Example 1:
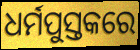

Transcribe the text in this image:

ଧର୍ମପୁସ୍ତକରେ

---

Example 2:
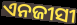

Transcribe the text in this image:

ଏନଜୀସୀ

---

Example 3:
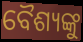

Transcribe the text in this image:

ବୈଶ୍ୟଙ୍କୁ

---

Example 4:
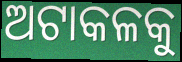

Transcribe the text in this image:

ଅଟାକଳକୁ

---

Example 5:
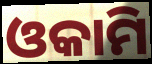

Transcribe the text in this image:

ଓକାମି